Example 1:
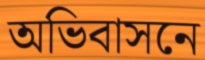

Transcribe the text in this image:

অভিবাসনে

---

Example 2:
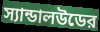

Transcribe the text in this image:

স্যান্ডালউডের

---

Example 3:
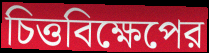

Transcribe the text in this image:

চিত্তবিক্ষেপের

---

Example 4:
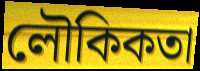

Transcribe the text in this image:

লৌকিকতা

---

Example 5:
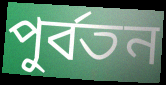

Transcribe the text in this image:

পুর্বতন